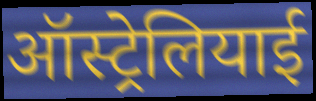
ऑस्ट्रेलियाई